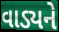
વાડ્યને